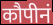
कौपीनं